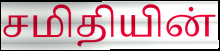
சமிதியின்